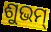
ଶୁଭମ୍